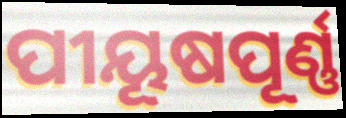
ପୀୟୂଷପୂର୍ଣ୍ଣ